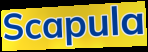
Scapula